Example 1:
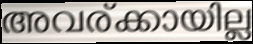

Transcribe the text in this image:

അവര്ക്കായില്ല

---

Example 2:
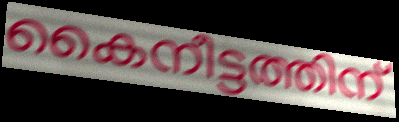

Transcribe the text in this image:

കൈനീട്ടത്തിന്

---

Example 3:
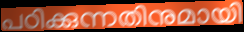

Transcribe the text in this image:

പഠിക്കുന്നതിനുമായി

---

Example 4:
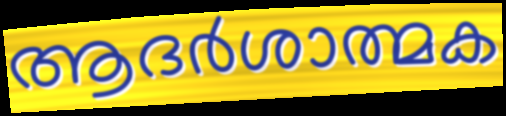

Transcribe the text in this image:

ആദർശാത്മക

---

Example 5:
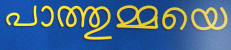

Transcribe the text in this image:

പാത്തുമ്മയെ